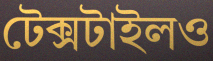
টেক্সটাইলও